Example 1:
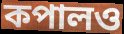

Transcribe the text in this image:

কপালও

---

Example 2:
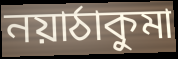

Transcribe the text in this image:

নয়াঠাকুমা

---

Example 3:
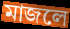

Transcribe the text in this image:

মাজলে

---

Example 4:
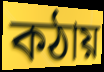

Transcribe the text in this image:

কঠায়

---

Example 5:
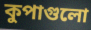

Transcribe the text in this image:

কুপাগুলো